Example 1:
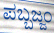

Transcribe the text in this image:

ಪಬ್ಬಜ್ಜಂ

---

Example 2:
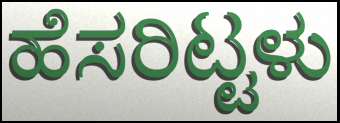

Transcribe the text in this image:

ಹೆಸರಿಟ್ಟಳು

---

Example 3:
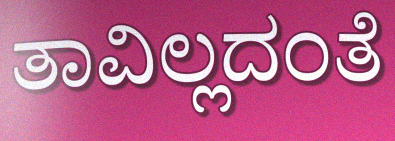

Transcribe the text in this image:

ತಾವಿಲ್ಲದಂತೆ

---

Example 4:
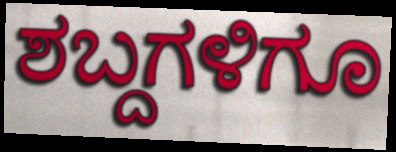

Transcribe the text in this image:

ಶಬ್ದಗಳಿಗೂ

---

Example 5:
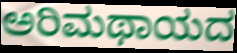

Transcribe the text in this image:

ಅರಿಮಥಾಯದ